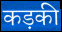
कड़की